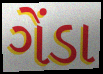
ગેંડા